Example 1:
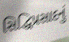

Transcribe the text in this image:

સિદ્ધિપ્રસાદનું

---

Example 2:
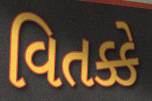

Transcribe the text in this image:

વિતક્કે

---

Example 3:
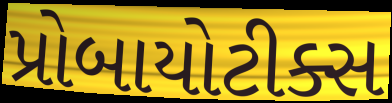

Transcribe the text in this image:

પ્રોબાયોટીક્સ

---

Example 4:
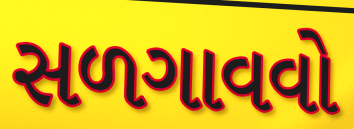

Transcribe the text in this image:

સળગાવવો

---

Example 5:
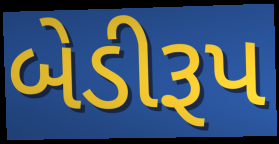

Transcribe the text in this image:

બેડીરૂપ